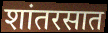
शांतरसात